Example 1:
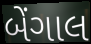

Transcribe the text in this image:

બેંગાલ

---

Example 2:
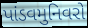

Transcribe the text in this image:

પાંડવમુનિવરો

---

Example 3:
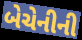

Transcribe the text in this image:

બેચેનીની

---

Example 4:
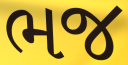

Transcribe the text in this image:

ભજ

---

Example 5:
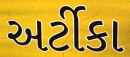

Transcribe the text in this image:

અર્ટીકા